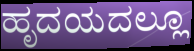
ಹೃದಯದಲ್ಲೂ